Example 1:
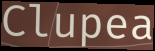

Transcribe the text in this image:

Clupea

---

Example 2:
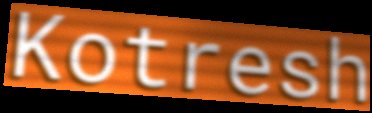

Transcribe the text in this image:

Kotresh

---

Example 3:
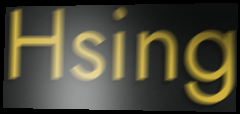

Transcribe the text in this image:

Hsing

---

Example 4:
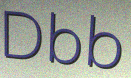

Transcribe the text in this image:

Dbb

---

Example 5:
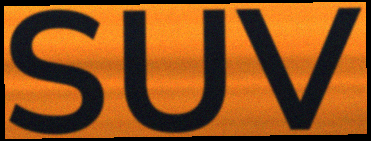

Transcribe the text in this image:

SUV